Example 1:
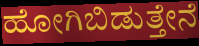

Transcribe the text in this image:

ಹೋಗಿಬಿಡುತ್ತೇನೆ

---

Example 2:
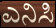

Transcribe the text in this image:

ಎನಿಸಿ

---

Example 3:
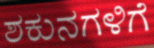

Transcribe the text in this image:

ಶಕುನಗಳಿಗೆ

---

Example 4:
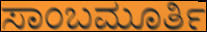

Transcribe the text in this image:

ಸಾಂಬಮೂರ್ತಿ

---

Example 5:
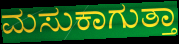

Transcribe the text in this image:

ಮಸುಕಾಗುತ್ತಾ